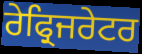
ਰੇਫ੍ਰਿਜਰੇਟਰ